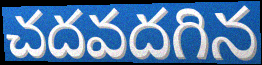
చదవదగిన